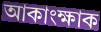
আকাংক্ষাক